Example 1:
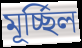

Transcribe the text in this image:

মূর্চ্ছিল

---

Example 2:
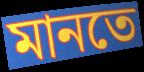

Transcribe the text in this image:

মানতে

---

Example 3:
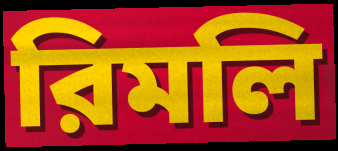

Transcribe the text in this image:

রিমলি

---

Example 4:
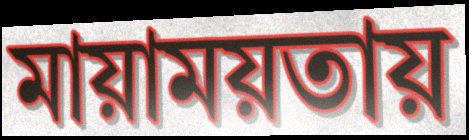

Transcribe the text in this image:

মায়াময়তায়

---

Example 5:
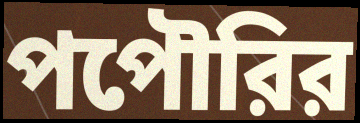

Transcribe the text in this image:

পপৌরির